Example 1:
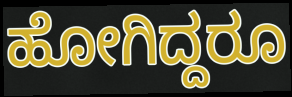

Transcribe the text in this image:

ಹೋಗಿದ್ದರೂ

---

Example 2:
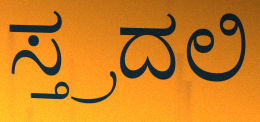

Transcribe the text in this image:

ಸ್ತ್ರದಲಿ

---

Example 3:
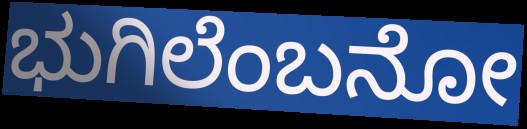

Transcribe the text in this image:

ಭುಗಿಲೆಂಬನೋ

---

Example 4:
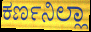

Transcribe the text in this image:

ಕರ್ಣನಿಲ್ಲಾ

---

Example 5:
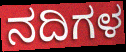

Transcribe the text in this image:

ನದಿಗಳ